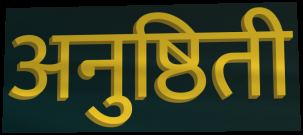
अनुष्ठिती